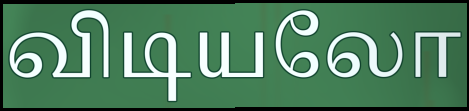
விடியலோ